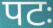
पटः